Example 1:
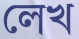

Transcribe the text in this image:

লেখ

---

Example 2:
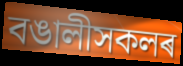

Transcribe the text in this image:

বঙালীসকলৰ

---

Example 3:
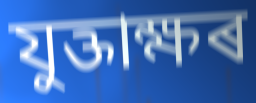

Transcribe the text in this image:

যুক্তাক্ষৰ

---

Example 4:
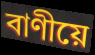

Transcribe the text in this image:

বাণীয়ে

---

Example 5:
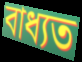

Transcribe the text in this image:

বাধ্যত